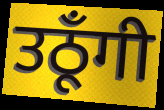
उठूँगी